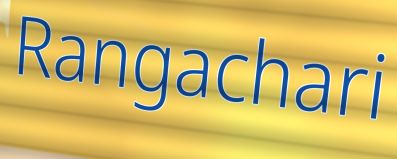
Rangachari